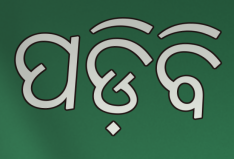
ପଡ଼ିବି